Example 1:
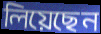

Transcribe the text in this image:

লিয়েছেন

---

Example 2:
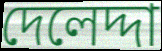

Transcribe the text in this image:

দেলেদ্দা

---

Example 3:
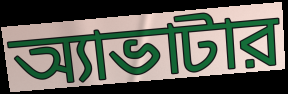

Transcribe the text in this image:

অ্যাভাটার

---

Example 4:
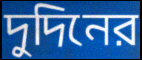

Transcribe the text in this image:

দুদিনের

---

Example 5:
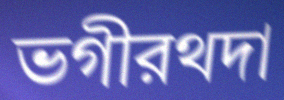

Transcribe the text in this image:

ভগীরথদা